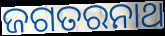
ଜଗତରନାଥ